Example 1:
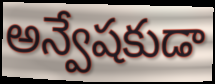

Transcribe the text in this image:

అన్వేషకుడా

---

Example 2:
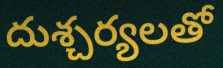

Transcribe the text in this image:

దుశ్చర్యలతో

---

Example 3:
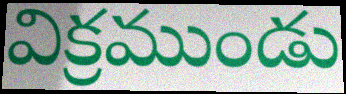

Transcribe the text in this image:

విక్రముండు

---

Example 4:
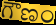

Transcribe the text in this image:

గౌణం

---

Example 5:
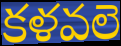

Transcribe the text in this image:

కళవలె